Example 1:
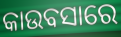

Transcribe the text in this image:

କାଉବସାରେ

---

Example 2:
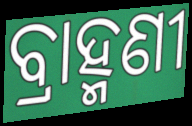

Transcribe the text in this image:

ବ୍ରାହ୍ମଣୀ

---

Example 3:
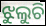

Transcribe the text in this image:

ଝୁଲୁଚି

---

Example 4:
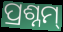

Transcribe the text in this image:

ପ୍ରଶ୍ନମ୍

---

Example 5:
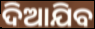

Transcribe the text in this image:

ଦିଆଯିବ